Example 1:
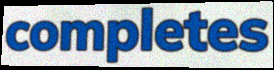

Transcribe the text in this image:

completes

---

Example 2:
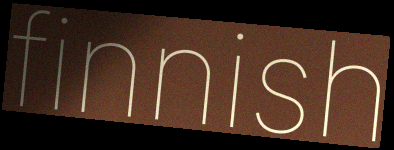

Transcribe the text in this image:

finnish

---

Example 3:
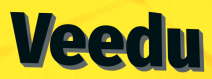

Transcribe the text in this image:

Veedu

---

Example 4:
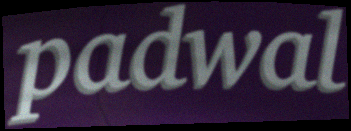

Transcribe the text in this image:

padwal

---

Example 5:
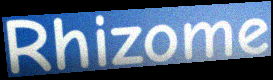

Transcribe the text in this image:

Rhizome